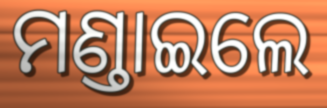
ମଣ୍ଡାଇଲେ